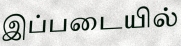
இப்படையில்